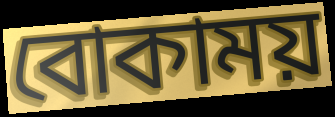
বোকাময়